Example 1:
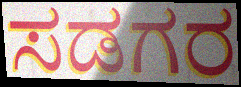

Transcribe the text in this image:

ಸಡಗರ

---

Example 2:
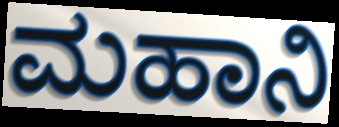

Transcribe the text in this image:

ಮಹಾನಿ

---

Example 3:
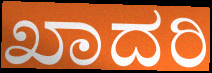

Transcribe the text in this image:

ಖಾದರಿ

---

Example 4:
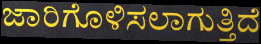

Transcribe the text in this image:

ಜಾರಿಗೊಳಿಸಲಾಗುತ್ತಿದೆ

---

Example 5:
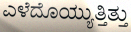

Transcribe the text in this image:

ಎಳೆದೊಯ್ಯುತ್ತಿತ್ತು